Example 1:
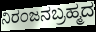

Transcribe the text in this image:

ನಿರಂಜನಬ್ರಹ್ಮದ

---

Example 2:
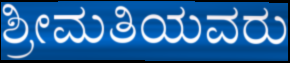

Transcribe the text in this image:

ಶ್ರೀಮತಿಯವರು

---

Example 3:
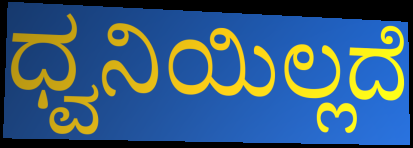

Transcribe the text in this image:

ಧ್ವನಿಯಿಲ್ಲದೆ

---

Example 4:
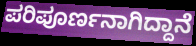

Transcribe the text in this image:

ಪರಿಪೂರ್ಣನಾಗಿದ್ದಾನೆ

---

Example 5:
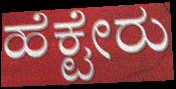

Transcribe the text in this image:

ಹೆಕ್ಟೇರು